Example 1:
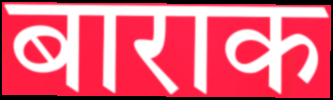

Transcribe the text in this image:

बाराक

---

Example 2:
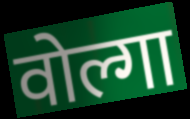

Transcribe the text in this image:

वोल्गा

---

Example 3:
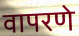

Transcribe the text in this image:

वापरणे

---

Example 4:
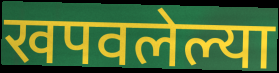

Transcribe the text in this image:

खपवलेल्या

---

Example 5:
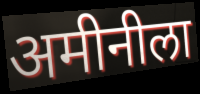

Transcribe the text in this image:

अमीनीला